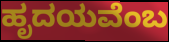
ಹೃದಯವೆಂಬ